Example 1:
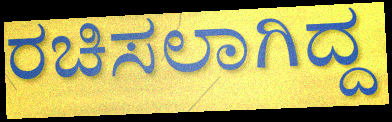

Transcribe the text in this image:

ರಚಿಸಲಾಗಿದ್ದ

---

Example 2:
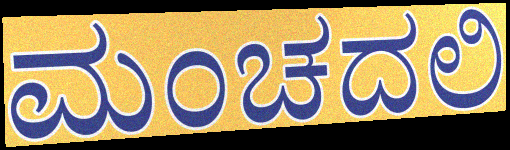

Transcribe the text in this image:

ಮಂಚದಲಿ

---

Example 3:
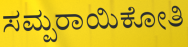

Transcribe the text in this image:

ಸಮ್ಪರಾಯಿಕೋತಿ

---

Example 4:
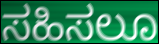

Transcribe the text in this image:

ಸಹಿಸಲೂ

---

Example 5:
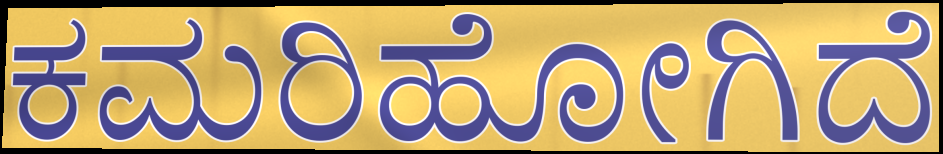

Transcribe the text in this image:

ಕಮರಿಹೋಗಿದೆ